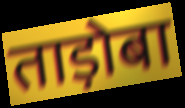
ताड़ोबा